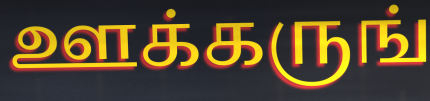
ஊக்கருங்